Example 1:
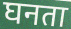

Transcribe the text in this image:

घनता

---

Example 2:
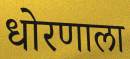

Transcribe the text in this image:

धोरणाला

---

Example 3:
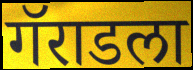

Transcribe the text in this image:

गॅराडला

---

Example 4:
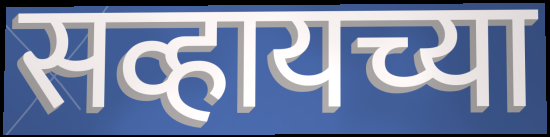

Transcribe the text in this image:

सव्हायच्या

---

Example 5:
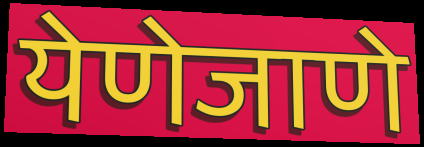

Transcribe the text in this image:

येणेजाणे